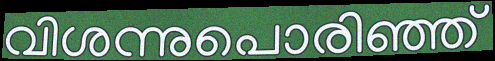
വിശന്നുപൊരിഞ്ഞ്